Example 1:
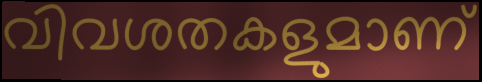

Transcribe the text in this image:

വിവശതകളുമാണ്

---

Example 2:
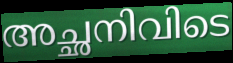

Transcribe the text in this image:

അച്ഛനിവിടെ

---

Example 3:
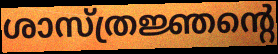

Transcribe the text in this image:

ശാസ്ത്രജ്ഞന്റെ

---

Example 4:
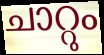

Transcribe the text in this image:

ചാറ്റും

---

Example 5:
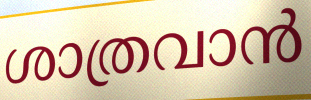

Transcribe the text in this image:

ശാത്രവാൻ